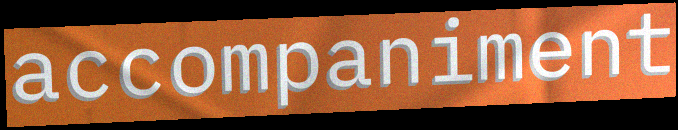
accompaniment